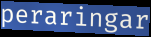
peraringar